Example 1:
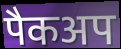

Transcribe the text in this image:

पैकअप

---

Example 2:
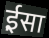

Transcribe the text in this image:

ई़सा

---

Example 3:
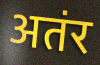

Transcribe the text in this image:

अतंर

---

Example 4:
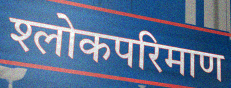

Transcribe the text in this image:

श्लोकपरिमाण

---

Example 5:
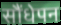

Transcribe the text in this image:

सौंधेपन